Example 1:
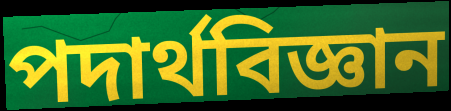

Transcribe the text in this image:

পদাৰ্থবিজ্ঞান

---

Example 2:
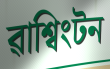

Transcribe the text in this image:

ৱাশ্বিংটন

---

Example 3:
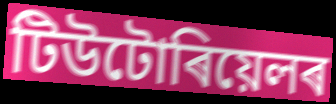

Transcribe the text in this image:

টিউটোৰিয়েলৰ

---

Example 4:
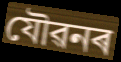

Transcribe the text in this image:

যৌৱনৰ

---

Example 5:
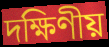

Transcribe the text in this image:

দক্ষিণীয়